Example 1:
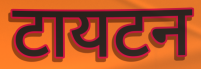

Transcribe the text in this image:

टायटन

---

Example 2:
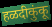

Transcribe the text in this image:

हळदीकुंकू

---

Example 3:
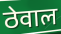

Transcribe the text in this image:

ठेवाल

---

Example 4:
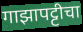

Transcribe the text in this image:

गाझापट्टीचा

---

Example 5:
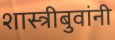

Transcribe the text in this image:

शास्त्रीबुवांनी